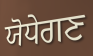
ਯੋਧੇਗਣ